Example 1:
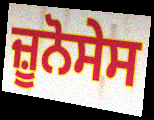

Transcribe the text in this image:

ਜ਼ੂਨੋਸੇਸ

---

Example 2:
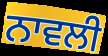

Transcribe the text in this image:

ਨਾਵਲੀ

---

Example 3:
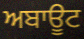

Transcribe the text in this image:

ਅਬਾਊਟ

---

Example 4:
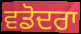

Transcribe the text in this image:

ਵਡੋਦਰਾ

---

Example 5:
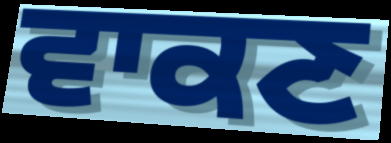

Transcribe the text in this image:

ਵਾਕਣ